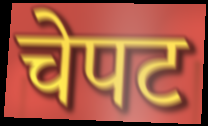
चेपट